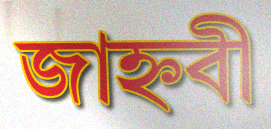
জাহ্নবী